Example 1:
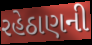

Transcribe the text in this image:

રહેઠાણની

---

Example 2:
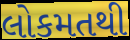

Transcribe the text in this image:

લોકમતથી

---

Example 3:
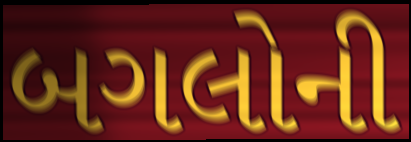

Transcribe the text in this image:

બગલોની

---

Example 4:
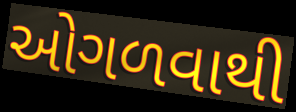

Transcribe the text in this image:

ઓગળવાથી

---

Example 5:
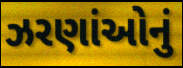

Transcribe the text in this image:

ઝરણાંઓનું